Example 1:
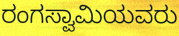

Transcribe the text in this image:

ರಂಗಸ್ವಾಮಿಯವರು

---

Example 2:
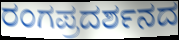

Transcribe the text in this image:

ರಂಗಪ್ರದರ್ಶನದ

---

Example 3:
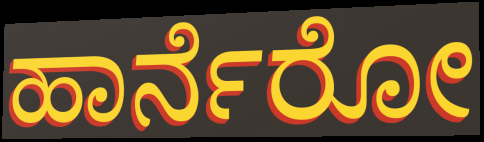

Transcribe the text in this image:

ಹಾರ್ನೆರೋ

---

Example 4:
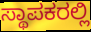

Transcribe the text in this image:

ಸ್ಥಾಪಕರಲ್ಲಿ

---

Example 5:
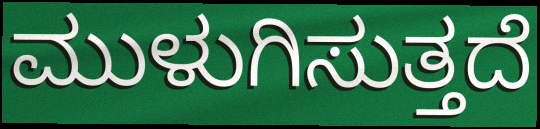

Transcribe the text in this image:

ಮುಳುಗಿಸುತ್ತದೆ